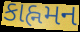
કાહ્નમન